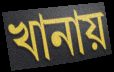
খানায়